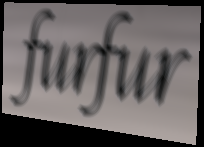
furfur